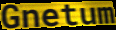
Gnetum